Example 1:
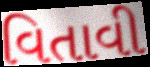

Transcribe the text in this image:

વિતાવી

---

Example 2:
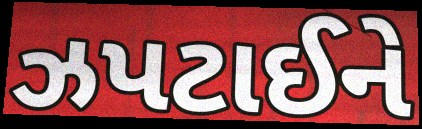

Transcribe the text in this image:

ઝપટાઈને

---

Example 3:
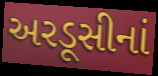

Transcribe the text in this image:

અરડૂસીનાં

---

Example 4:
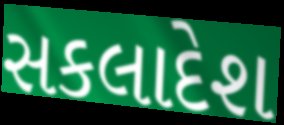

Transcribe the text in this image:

સકલાદેશ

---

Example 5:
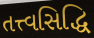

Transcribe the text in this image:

તત્ત્વસિદ્ધિ